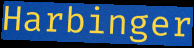
Harbinger